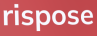
rispose